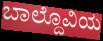
ಬಾಲ್ದೊವಿಯ